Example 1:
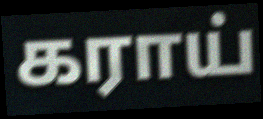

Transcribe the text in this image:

கராய்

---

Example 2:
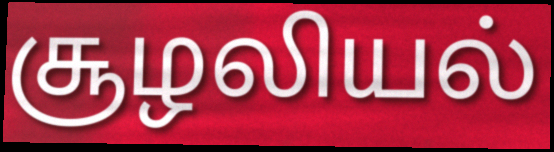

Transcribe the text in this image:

சூழலியல்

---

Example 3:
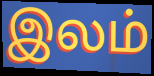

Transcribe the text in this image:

இலம்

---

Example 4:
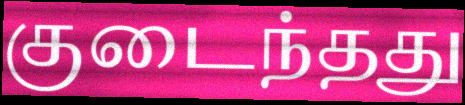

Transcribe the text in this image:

குடைந்தது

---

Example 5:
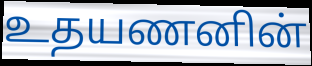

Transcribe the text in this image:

உதயணனின்